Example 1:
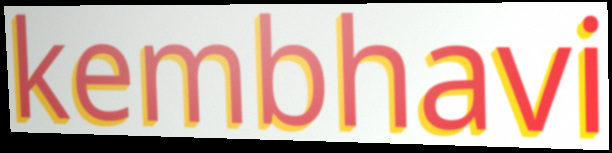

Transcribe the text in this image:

kembhavi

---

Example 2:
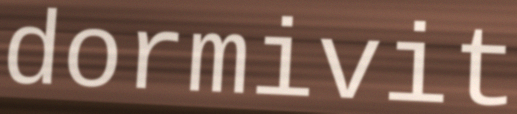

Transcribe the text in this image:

dormivit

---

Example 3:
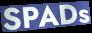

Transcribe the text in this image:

SPADs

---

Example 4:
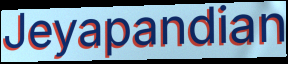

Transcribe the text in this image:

Jeyapandian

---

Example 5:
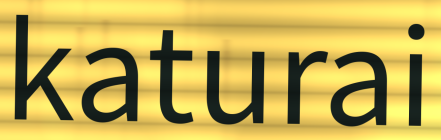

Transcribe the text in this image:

katurai